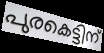
പുരകെട്ടിന്